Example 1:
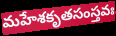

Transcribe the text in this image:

మహేశకృతసంస్తవః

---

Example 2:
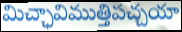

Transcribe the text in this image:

మిచ్ఛావిముత్తిపచ్చయా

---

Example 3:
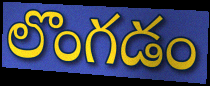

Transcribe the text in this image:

లొంగడం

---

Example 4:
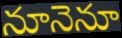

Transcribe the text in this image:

నూనెనూ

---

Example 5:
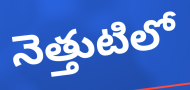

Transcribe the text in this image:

నెత్తుటిలో